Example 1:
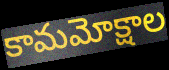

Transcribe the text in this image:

కామమోక్షాల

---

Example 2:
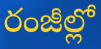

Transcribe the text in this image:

రంజీల్లో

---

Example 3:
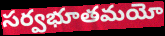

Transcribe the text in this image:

సర్వభూతమయో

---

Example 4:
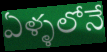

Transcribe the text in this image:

ఏళ్ళలోనే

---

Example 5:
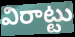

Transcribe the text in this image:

విరాట్టు